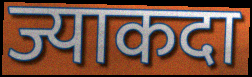
ज्याकदा